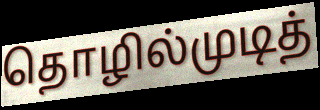
தொழில்முடித்